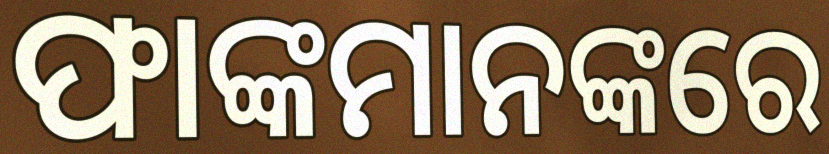
ଫାଙ୍କମାନଙ୍କରେ